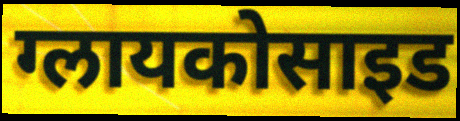
ग्लायकोसाइड